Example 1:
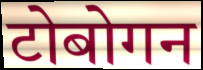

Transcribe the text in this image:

टोबोगन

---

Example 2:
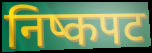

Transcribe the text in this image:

निष्कपट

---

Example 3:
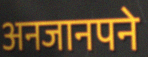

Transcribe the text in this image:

अनजानपने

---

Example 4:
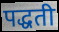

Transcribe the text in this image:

पद्धती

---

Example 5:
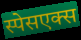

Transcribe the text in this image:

स्‍पेसएक्‍स